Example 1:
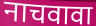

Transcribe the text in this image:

नाचवावा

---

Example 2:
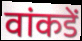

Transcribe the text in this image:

वांकडें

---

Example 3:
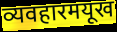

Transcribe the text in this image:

व्यवहारमयूख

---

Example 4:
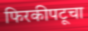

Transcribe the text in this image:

फिरकीपटूचा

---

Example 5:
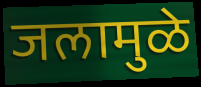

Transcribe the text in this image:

जलामुळे